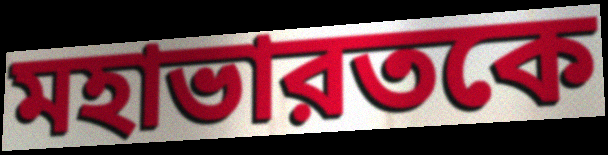
মহাভারতকে